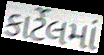
કાર્ટેલમાં